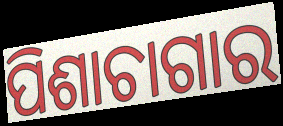
ପିଶାଚାଗାର